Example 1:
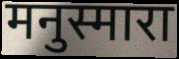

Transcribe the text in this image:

मनुस्मारा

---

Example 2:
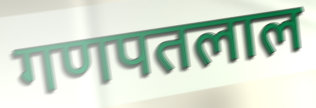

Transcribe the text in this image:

गणपतलाल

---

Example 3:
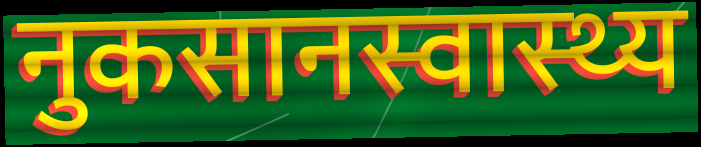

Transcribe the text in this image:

नुकसानस्वास्थ्य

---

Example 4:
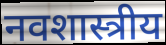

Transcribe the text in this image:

नवशास्त्रीय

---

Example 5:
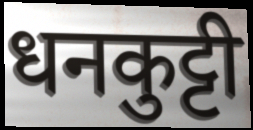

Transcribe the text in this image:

धनकुट्टी